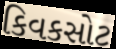
કિવકસોટ